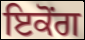
ਇਕੋਂਗ